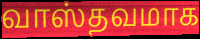
வாஸ்தவமாக